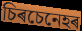
চিৰচেনেহৰ